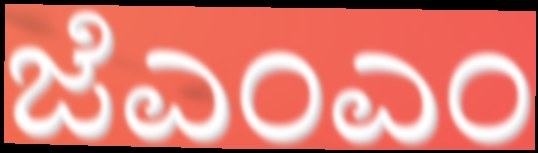
ಜೆಎಂಎಂ